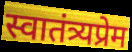
स्वातंत्र्यप्रेम